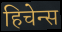
हिचेन्स